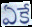
ఏకే